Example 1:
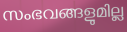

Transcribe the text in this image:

സംഭവങ്ങളുമില്ല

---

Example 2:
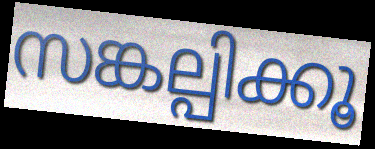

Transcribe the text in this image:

സങ്കല്പിക്കൂ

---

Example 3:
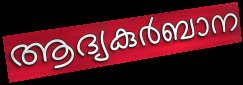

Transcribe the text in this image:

ആദ്യകുർബാന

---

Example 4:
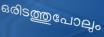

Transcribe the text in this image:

ഒരിടത്തുപോലും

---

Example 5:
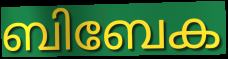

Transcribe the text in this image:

ബിബേക